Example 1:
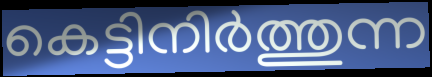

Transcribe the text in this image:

കെട്ടിനിർത്തുന്ന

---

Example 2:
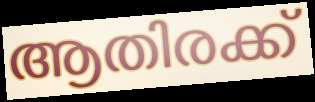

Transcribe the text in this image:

ആതിരക്ക്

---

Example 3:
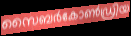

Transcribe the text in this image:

സൈബർകോൺഡ്രിയ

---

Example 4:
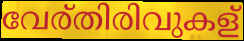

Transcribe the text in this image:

വേര്തിരിവുകള്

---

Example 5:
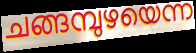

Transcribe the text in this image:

ചങ്ങമ്പുഴയെന്ന